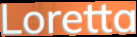
Loretta